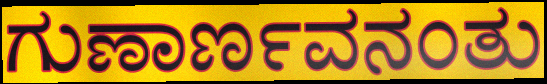
ಗುಣಾರ್ಣವನಂತು